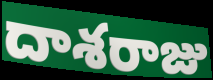
దాశరాజు